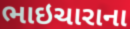
ભાઇચારાના